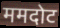
ममदोट